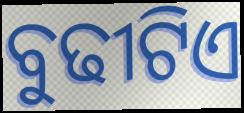
ବୁଢୀଟିଏ